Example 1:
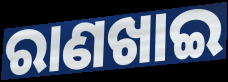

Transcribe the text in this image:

ରାଣଖାଇ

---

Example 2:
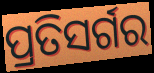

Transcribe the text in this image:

ପ୍ରତିସର୍ଗର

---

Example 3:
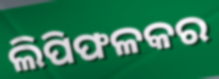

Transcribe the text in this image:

ଲିପିଫଳକର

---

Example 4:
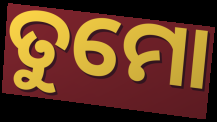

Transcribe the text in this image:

ତୁମୋ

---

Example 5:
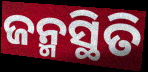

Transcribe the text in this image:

ଜନ୍ମସ୍ଥିତି